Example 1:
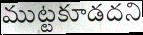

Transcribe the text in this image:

ముట్టకూడదని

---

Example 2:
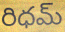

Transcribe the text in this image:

రిధమ్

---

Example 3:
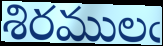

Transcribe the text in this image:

శిరములఁ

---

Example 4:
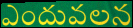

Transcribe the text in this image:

ఎందువలన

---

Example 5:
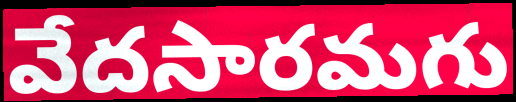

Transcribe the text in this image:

వేదసారమగు